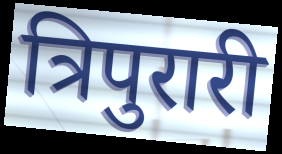
त्रिपुरारी